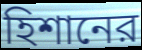
হিশানের